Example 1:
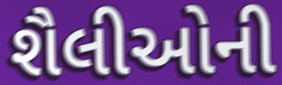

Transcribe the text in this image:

શૈલીઓની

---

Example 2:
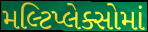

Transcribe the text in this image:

મલ્ટિપ્લેક્સોમાં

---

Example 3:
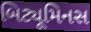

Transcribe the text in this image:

બિટ્યૂમિનસ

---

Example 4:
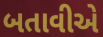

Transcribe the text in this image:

બતાવીએ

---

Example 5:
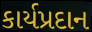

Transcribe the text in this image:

કાર્યપ્રદાન